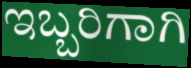
ಇಬ್ಬರಿಗಾಗಿ